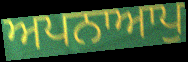
ਅਪਨਾਆਪੁ